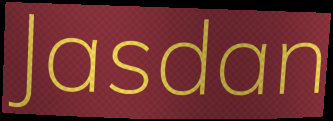
Jasdan